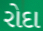
રોદા